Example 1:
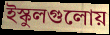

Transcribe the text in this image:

ইস্কুলগুলোয়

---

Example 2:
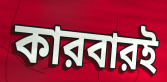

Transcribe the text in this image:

কারবারই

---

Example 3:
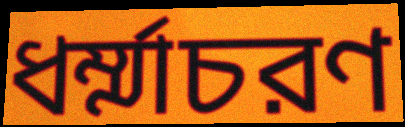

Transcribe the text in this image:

ধর্ম্মাচরণ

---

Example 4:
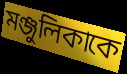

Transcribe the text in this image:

মঞ্জুলিকাকে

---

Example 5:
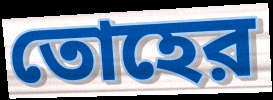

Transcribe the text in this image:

তোহের